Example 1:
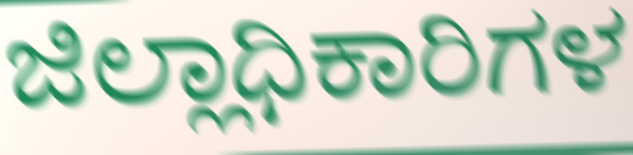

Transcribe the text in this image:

ಜಿಲ್ಲಾಧಿಕಾರಿಗಳ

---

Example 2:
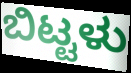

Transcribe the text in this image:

ಬಿಟ್ಟಳು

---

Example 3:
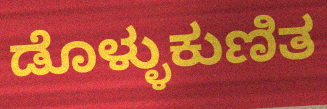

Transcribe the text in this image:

ಡೊಳ್ಳುಕುಣಿತ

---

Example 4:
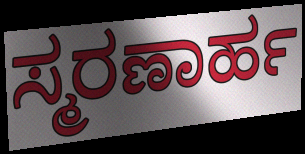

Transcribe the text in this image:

ಸ್ಮರಣಾರ್ಹ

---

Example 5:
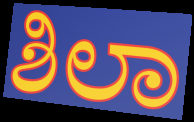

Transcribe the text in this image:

ಶಿಲಾ